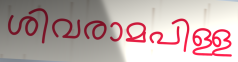
ശിവരാമപിള്ള